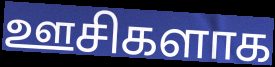
ஊசிகளாக